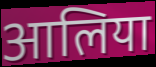
आलिया